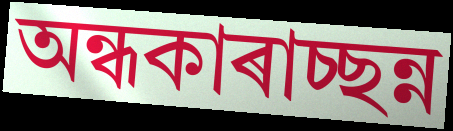
অন্ধকাৰাচ্ছন্ন